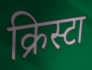
क्रिस्टा